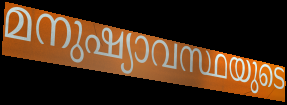
മനുഷ്യാവസ്ഥയുടെ